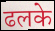
ढलके